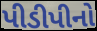
પીડીપીનો